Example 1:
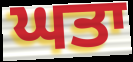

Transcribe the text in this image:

ਘਤਾ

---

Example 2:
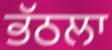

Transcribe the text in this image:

ਭੱਠਲਾ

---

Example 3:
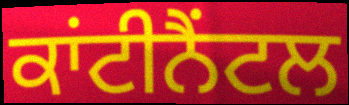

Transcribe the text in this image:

ਕਾਂਟੀਨੈਂਟਲ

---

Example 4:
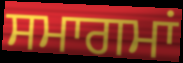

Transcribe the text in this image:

ਸਮਾਗਮਾਂ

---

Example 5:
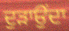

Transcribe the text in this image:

ਦੁੜਾਉਂਦਾ